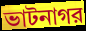
ভাটনাগর